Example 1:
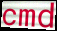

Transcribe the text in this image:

cmd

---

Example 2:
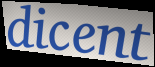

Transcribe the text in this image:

dicent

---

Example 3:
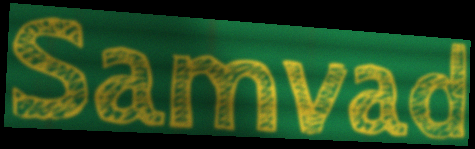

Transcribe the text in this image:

Samvad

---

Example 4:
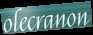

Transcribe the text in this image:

olecranon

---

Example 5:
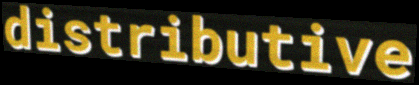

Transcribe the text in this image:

distributive